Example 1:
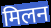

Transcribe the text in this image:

मिलन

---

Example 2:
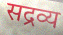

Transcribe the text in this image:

सद्रव्य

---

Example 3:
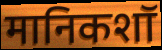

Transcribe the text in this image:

मानिकशॉ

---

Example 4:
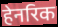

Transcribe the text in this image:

हेनरिक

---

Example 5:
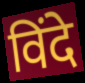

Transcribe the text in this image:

विंदे